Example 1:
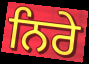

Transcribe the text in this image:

ਨਿਰੇ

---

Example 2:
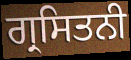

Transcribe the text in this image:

ਗ੍ਰਸਿਤਨੀ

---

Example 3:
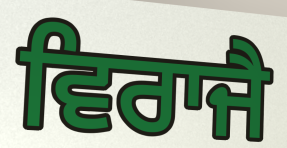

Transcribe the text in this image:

ਵਿਰਾਜੈ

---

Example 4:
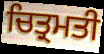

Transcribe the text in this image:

ਚਿਤ੍ਰਮਤੀ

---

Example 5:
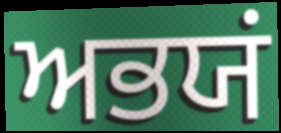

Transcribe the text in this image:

ਅਭਯਂ